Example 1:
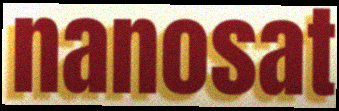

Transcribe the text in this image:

nanosat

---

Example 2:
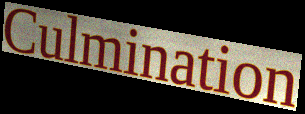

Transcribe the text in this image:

Culmination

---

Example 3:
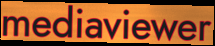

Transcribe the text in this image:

mediaviewer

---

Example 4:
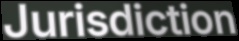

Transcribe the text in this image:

Jurisdiction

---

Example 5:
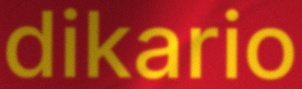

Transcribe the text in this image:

dikario